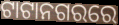
ଟାଟାନଗରରେ